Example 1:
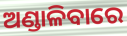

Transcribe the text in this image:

ଅଣ୍ଡାଳିବାରେ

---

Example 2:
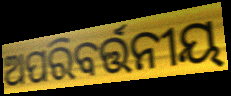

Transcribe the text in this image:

ଅପରିବର୍ତ୍ତନୀୟ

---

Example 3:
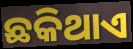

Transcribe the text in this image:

ଛକିଥାଏ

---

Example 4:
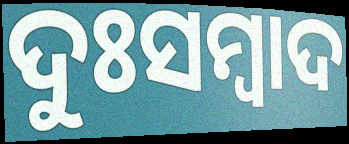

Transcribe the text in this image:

ଦୁଃସମ୍ବାଦ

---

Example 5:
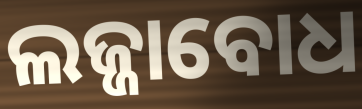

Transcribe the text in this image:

ଲଜ୍ଜାବୋଧ